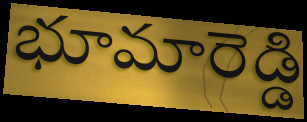
భూమారెడ్డి